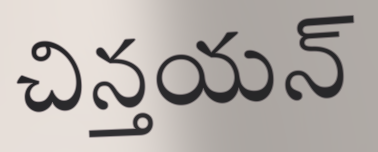
చిన్తయన్